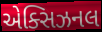
એક્સિઝનલ